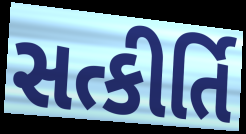
સત્કીર્તિ